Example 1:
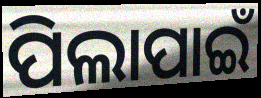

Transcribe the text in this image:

ପିଲାପାଇଁ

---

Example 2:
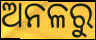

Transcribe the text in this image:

ଅନଳରୁ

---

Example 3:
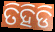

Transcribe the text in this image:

ତିହିଡି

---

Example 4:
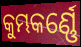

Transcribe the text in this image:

କୁମ୍ଭକର୍ଣ୍ଣେ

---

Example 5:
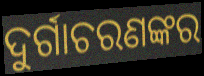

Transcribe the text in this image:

ଦୁର୍ଗାଚରଣଙ୍କର